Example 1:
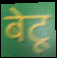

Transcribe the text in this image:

बेटू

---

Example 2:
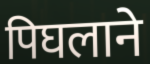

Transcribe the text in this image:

पिघलाने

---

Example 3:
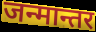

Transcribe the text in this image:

जन्मान्तर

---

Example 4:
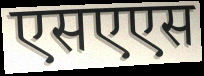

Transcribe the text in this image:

एसएएस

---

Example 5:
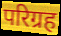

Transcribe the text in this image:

परिग्रह